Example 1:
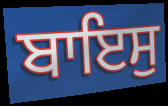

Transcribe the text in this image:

ਬਾਇਸੁ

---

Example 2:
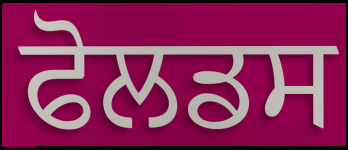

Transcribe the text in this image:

ਫੋਲਡਸ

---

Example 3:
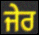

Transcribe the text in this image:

ਜੇਰ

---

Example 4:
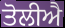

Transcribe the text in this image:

ਤੋਲੀਐ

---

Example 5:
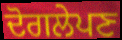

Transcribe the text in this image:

ਦੋਗਲੇਪਣ